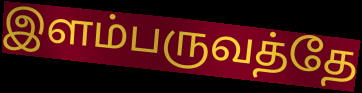
இளம்பருவத்தே